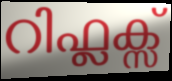
റിഫ്ലക്സ്